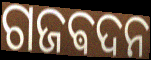
ଗଜଵଦନ